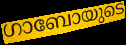
ഗാബോയുടെ